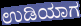
ಉಡಿಯಾಗ